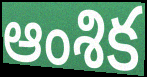
ఆంశిక